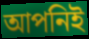
আপনিই